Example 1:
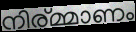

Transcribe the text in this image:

നിര്മ്മാണം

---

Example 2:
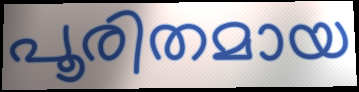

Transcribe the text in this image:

പൂരിതമായ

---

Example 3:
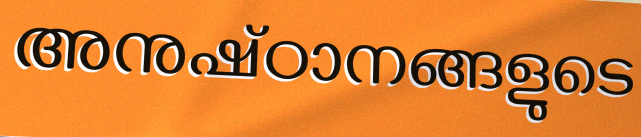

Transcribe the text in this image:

അനുഷ്‌ഠാനങ്ങളുടെ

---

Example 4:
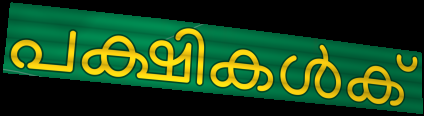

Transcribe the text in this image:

പക്ഷികൾക്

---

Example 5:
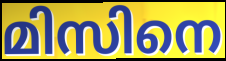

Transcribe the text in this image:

മിസിനെ